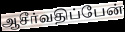
ஆசீர்வதிப்பேன்